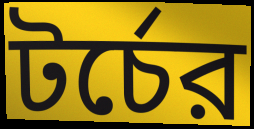
টর্চের